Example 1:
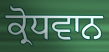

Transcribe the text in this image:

ਕ੍ਰੋਧਵਾਨ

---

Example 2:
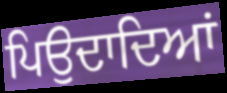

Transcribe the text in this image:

ਪਿਉਦਾਦਿਆਂ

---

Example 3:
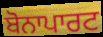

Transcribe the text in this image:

ਬੋਨਾਪਾਰਟ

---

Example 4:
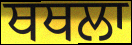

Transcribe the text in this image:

ਥਥਲਾ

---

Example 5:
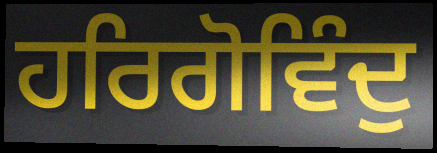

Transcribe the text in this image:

ਹਰਿਗੋਵਿੰਦੁ